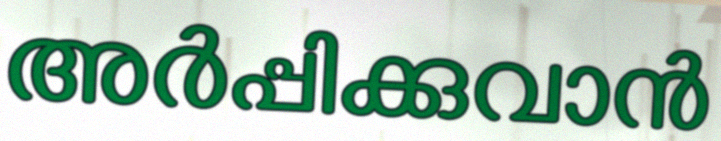
അർപ്പിക്കുവാൻ